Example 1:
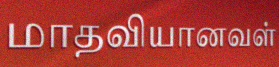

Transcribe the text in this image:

மாதவியானவள்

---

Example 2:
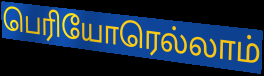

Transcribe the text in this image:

பெரியோரெல்லாம்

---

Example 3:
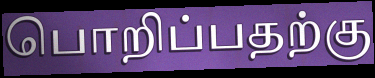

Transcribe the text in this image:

பொறிப்பதற்கு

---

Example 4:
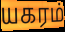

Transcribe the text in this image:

யகரம்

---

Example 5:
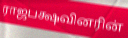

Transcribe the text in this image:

ராஜபக்ஷவினரின்